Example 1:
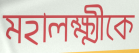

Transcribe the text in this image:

মহালক্ষ্মীকে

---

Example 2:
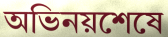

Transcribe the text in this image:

অভিনয়শেষে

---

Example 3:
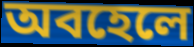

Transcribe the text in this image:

অবহেলে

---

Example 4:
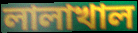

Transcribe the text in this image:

লালাখাল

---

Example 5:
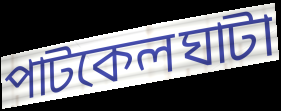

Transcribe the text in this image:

পাটকেলঘাটা